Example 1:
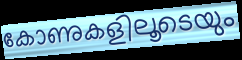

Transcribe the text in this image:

കോണുകളിലൂടെയും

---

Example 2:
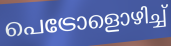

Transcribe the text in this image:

പെട്രോളൊഴിച്ച്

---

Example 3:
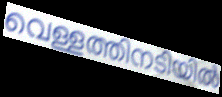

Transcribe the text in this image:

വെള്ളത്തിനടിയിൽ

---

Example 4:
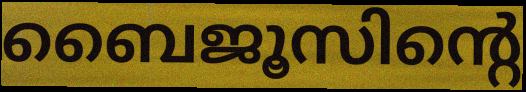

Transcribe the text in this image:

ബൈജൂസിന്റെ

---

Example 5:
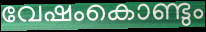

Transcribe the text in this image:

വേഷംകൊണ്ടും